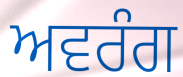
ਅਵਰੰਗ